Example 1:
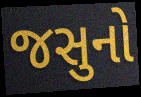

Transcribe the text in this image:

જસુનો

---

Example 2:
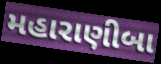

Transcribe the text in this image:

મહારાણીબા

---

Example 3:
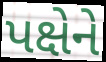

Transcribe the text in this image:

પક્ષેને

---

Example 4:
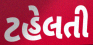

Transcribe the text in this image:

ટહેલતી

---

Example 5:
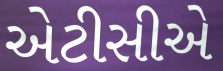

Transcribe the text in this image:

એટીસીએ